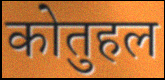
कोतुहल